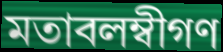
মতাবলম্বীগণ